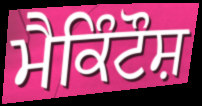
ਮੈਕਿੰਟੌਸ਼